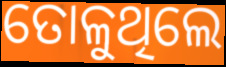
ତୋଳୁଥିଲେ